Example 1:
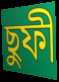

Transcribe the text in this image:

ছুফী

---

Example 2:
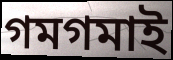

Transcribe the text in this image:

গমগমাই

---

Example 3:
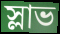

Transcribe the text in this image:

স্লাভ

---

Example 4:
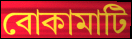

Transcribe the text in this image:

বোকামাটি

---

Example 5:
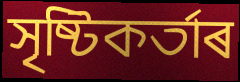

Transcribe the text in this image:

সৃষ্টিকৰ্তাৰ